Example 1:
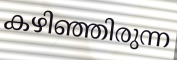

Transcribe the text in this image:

കഴിഞ്ഞിരുന്ന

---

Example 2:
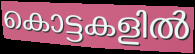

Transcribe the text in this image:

കൊട്ടകളിൽ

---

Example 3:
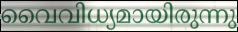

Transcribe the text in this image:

വൈവിധ്യമായിരുന്നു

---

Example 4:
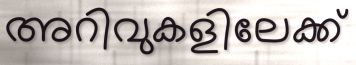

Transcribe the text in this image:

അറിവുകളിലേക്ക്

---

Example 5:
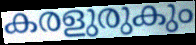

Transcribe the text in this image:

കരളുരുകും